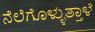
ನೆಲೆಗೊಳ್ಳುತ್ತಾಳೆ